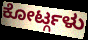
ಕೋರ್ಟ್ಗಳು